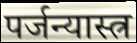
पर्जन्यास्त्र